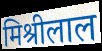
मिश्रीलाल